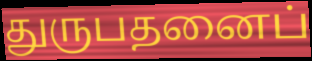
துருபதனைப்